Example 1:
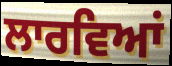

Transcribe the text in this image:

ਲਾਰਵਿਆਂ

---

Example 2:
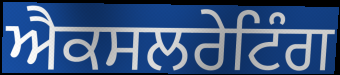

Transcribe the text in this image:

ਐਕਸਲਰੇਟਿੰਗ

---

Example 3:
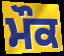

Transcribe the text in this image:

ਮੌਕ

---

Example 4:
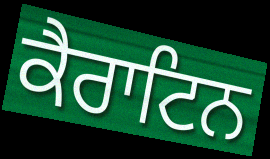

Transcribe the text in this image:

ਕੈਰਾਟਿਨ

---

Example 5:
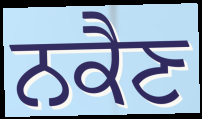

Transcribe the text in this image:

ਨਕੈਣ